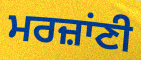
ਮਰਜ਼ਾਂਣੀ